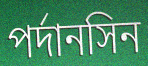
পর্দানসিন